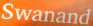
Swanand